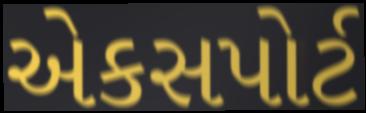
એકસપોર્ટ